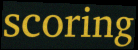
scoring